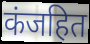
कंजहित